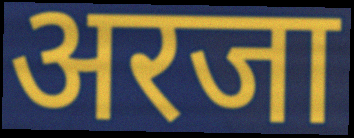
अरजा